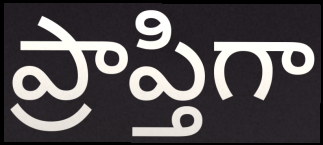
ప్రాప్తిగా